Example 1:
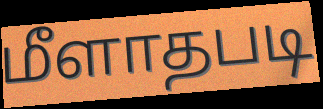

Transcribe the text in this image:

மீளாதபடி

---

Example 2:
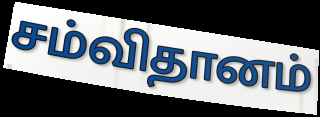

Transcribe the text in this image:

சம்விதானம்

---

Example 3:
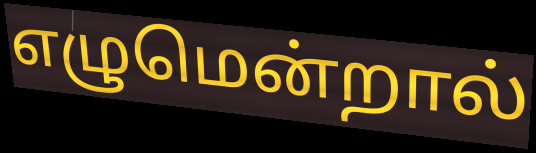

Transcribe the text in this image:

எழுமென்றால்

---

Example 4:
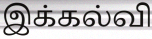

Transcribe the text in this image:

இக்கல்வி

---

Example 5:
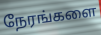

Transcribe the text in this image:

நேரங்களை